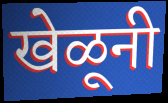
खेळूनी